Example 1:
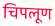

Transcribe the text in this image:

चिपलूण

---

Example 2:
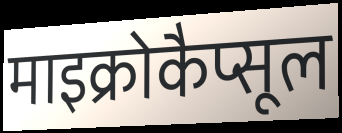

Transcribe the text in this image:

माइक्रोकैप्सूल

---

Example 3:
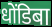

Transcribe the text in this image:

धोंडिबा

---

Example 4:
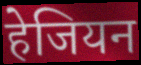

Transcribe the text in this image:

हेजियन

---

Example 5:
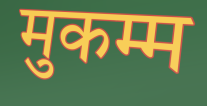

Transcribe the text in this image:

मुकम्म